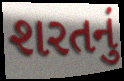
શરતનું